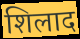
शिलाद